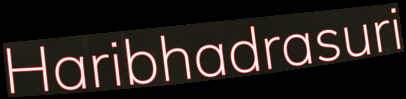
Haribhadrasuri